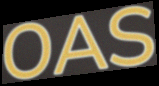
OAS